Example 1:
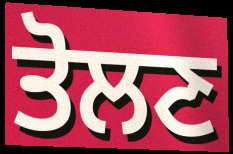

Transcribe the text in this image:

ਤੋਲਣ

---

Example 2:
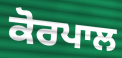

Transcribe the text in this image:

ਕੋਰਪਾਲ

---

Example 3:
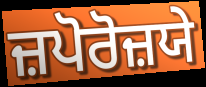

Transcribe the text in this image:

ਜ਼ਪੋਰੋਜ਼ਯੇ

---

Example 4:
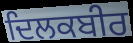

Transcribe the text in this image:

ਦਿਲਕਬੀਰ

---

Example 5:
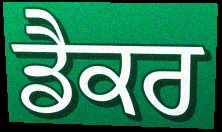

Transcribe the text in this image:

ਡੈਕਰ